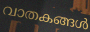
വാതകങ്ങൾ